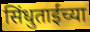
सिंधुताईंच्या